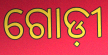
ଗୋଡ଼ୀ